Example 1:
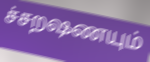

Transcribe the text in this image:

ச்சறஷணயும்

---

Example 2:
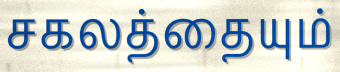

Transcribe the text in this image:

சகலத்தையும்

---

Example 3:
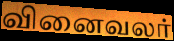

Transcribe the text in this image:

வினைவலர்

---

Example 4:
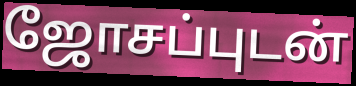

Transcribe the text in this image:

ஜோசப்புடன்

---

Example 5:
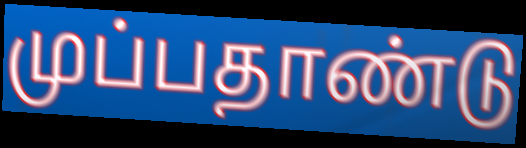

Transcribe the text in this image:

முப்பதாண்டு